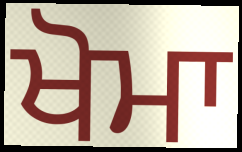
ਖੋਮਾ